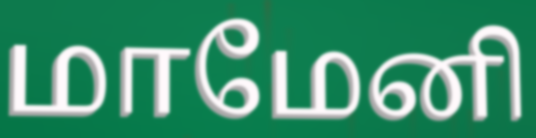
மாமேனி